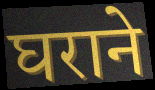
घराने